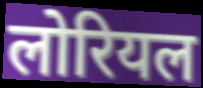
लोरियल